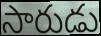
సారుడు